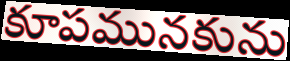
కూపమునకును